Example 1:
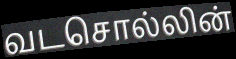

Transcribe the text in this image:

வடசொல்லின்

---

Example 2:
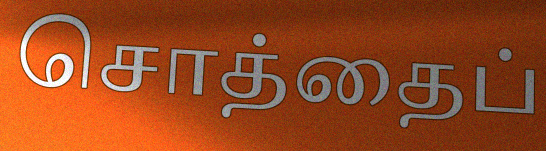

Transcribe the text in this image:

சொத்தைப்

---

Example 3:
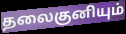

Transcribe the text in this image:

தலைகுனியும்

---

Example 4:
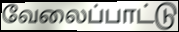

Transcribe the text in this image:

வேலைப்பாட்டு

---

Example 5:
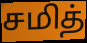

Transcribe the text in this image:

சமித்